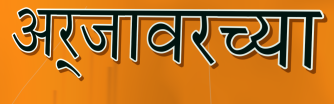
अर्जावरच्या